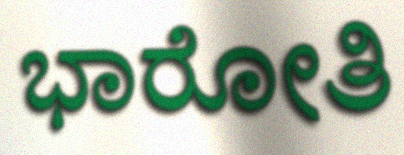
ಭಾರೋತಿ